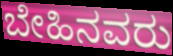
ಬೇಹಿನವರು